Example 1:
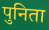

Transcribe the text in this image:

पुनिता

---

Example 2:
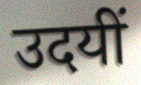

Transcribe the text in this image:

उदयीं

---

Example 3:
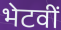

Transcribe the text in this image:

भेटवीं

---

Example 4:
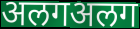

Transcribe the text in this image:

अलगअलग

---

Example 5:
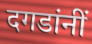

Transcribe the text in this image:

दगडांनीं